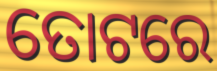
ତୋଟରେ